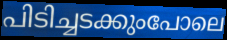
പിടിച്ചടക്കുംപോലെ